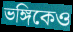
ভঙ্গিকেও